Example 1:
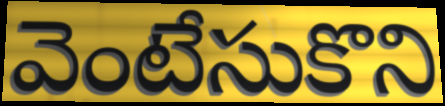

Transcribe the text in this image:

వెంటేసుకొని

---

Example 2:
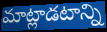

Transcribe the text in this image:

మాట్లాడటాన్ని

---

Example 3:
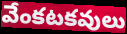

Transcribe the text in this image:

వేంకటకవులు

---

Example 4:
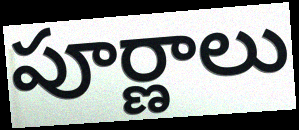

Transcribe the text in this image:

పూర్ణాలు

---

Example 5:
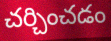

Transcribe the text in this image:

చర్చించడం